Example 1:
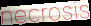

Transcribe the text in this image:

necrosis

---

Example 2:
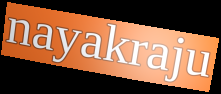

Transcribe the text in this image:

nayakraju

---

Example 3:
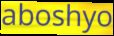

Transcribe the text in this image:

aboshyo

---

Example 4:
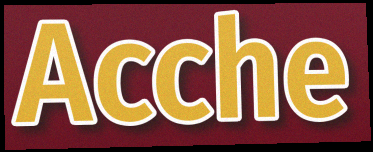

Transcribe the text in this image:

Acche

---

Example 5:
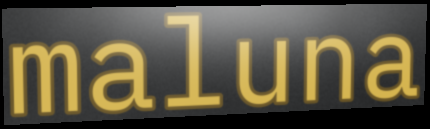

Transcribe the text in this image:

maluna